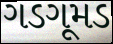
ગડગૂમડ